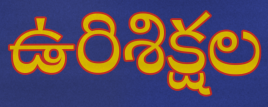
ఉరిశిక్షల